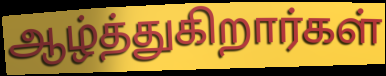
ஆழ்த்துகிறார்கள்